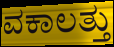
ವಕಾಲತ್ತು